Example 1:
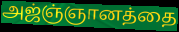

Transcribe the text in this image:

அஜ்ஞ்ஞானத்தை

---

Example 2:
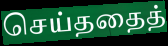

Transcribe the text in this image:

செய்ததைத்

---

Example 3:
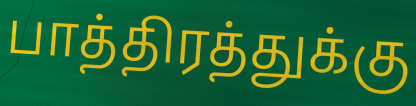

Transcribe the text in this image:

பாத்திரத்துக்கு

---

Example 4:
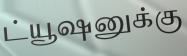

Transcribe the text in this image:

ட்யூஷனுக்கு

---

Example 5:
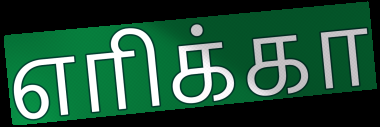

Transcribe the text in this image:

எரிக்கா